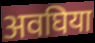
अवघिया